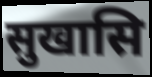
सुखासि